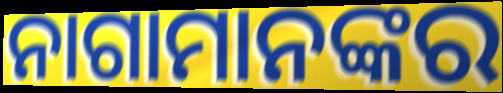
ନାଗାମାନଙ୍କର